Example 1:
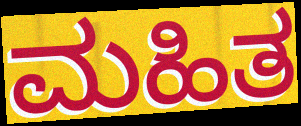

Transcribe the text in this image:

ಮಹಿತ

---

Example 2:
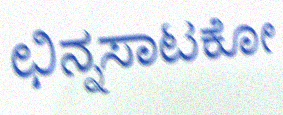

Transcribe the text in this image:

ಛಿನ್ನಸಾಟಕೋ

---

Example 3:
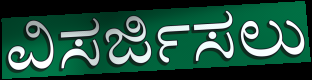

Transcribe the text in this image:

ವಿಸರ್ಜಿಸಲು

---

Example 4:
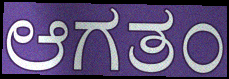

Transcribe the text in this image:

ಆಗತಂ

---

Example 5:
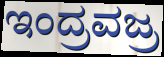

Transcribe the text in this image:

ಇಂದ್ರವಜ್ರ